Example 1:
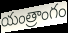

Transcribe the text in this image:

యంత్రాంగం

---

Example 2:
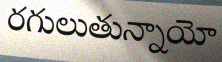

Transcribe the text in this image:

రగులుతున్నాయో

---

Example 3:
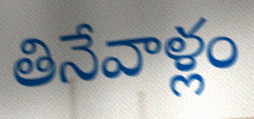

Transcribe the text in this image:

తినేవాళ్లం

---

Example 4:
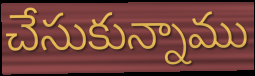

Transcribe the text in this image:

చేసుకున్నాము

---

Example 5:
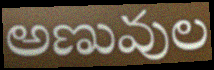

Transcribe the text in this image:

అణువుల